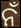
ନଁ